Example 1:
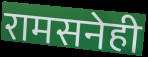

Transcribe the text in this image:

रामसनेही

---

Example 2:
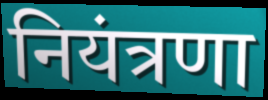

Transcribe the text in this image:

नियंत्रणा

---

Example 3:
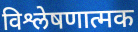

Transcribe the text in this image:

विश्लेषणात्मक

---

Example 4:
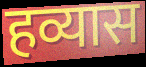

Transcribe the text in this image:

हव्यास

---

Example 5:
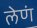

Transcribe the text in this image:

लेणं